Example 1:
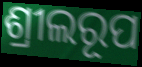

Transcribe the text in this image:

ଶ୍ରୀଲରୂପ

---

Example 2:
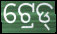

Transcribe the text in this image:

ଟ୍ରେଡ୍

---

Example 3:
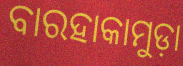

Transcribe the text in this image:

ବାରହାକାମୁଡ଼ା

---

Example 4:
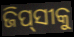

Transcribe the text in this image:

ଜିପ୍‌ସୀକୁ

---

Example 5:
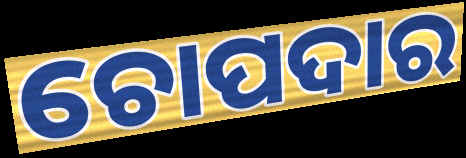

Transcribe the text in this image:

ଚୋପଦାର